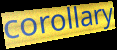
corollary